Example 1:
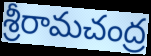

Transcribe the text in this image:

శ్రీరామచంద్ర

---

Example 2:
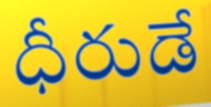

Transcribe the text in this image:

ధీరుడే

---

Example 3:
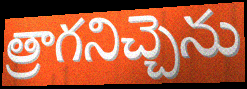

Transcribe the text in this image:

త్రాగనిచ్చెను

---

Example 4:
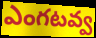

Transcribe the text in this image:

ఎంగటవ్వ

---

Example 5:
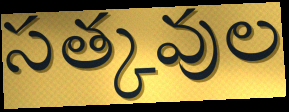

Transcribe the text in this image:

సత్కవుల